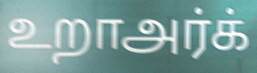
உறாஅர்க்